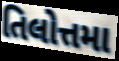
તિલોત્તમા